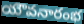
యౌవనారంభ